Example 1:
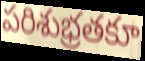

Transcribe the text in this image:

పరిశుభ్రతకూ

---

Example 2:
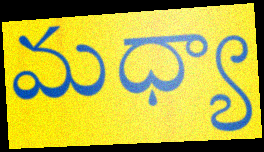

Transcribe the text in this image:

మధ్యా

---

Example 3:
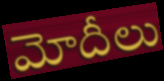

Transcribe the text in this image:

మోదీలు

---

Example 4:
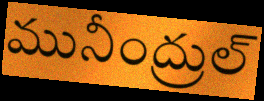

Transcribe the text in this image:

మునీంద్రుల్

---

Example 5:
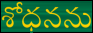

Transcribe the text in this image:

శోధనను